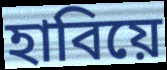
হাবিয়ে